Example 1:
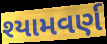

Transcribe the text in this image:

શ્યામવર્ણ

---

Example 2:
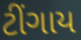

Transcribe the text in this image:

ટીંગાય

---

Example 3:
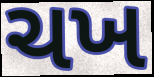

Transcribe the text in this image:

ચખ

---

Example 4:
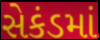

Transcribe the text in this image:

સેકંડમાં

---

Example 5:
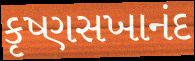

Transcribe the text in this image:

કૃષ્ણસખાનંદ